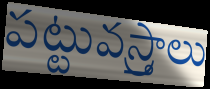
పట్టువస్ర్తాలు